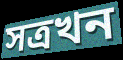
সত্ৰখন